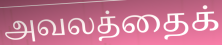
அவலத்தைக்